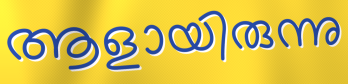
ആളായിരുന്നു